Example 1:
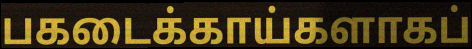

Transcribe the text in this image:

பகடைக்காய்களாகப்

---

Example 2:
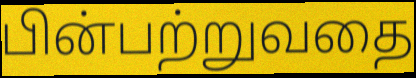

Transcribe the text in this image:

பின்பற்றுவதை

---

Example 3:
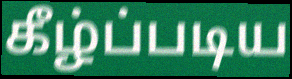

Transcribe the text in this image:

கீழ்ப்படிய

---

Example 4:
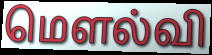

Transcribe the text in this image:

மௌல்வி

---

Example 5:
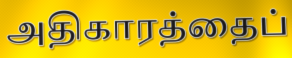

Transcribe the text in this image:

அதிகாரத்தைப்